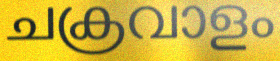
ചക്രവാളം